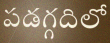
పడగ్గదిలో